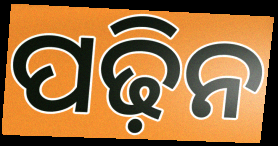
ପଢ଼ିନ